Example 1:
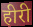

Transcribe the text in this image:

हीरी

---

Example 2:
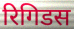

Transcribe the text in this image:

रिगिडस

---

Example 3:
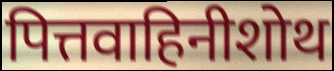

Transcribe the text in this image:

पित्तवाहिनीशोथ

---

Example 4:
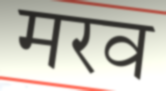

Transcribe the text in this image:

मरव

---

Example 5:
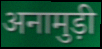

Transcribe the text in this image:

अनामुड़ी